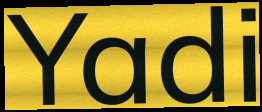
Yadi